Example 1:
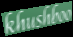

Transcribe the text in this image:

khushboo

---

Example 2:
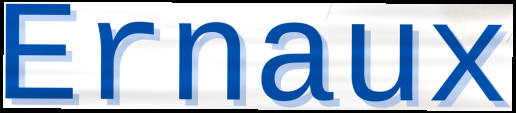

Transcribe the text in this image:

Ernaux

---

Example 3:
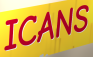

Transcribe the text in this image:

ICANS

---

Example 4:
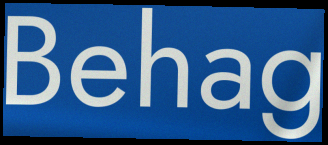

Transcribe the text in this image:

Behag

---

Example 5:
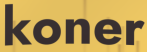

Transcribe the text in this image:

koner